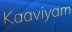
Kaaviyam